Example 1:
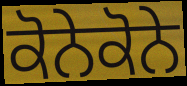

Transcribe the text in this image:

ਕੋਨੇਕੋਨੇ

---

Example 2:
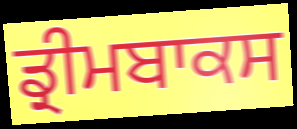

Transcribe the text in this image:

ਡ੍ਰੀਮਬਾਕਸ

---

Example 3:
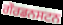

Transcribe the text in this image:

ਗੌਰਡਨਸਟਨ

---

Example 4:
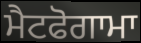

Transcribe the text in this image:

ਮੈਟਫੋਗਾਮਾ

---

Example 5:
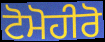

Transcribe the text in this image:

ਟੋਮੋਹੀਰੋ